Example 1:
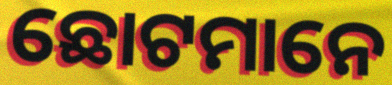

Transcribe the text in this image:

ଛୋଟମାନେ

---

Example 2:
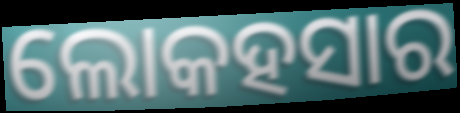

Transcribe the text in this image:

ଲୋକହସାର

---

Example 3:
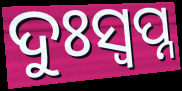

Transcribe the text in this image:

ଦୁଃସ୍ଵପ୍ନ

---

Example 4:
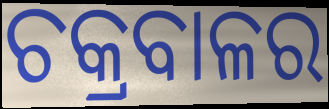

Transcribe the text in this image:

ଚକ୍ରବାଳର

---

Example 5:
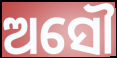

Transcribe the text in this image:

ଅସୌ